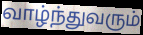
வாழ்ந்துவரும்